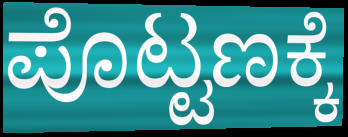
ಪೊಟ್ಟಣಕ್ಕೆ